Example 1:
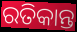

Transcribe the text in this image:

ରତିକାନ୍ତ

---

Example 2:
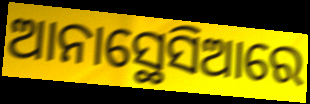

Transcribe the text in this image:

ଆନାସ୍ଥେସିଆରେ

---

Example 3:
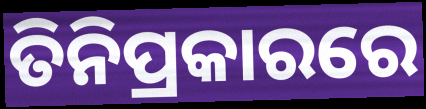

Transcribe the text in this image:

ତିନିପ୍ରକାରରେ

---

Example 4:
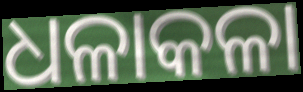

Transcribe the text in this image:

ଧଳାକଳା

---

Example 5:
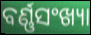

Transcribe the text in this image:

ବର୍ଣ୍ଣସଂଖ୍ୟା